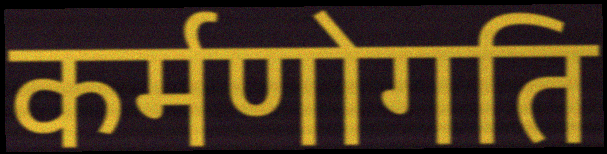
कर्मणोगति